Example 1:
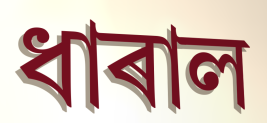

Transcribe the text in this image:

ধাৰাল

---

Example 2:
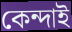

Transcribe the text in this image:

কেন্দাই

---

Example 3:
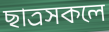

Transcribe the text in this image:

ছাত্ৰসকলে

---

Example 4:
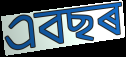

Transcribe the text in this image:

এবছৰ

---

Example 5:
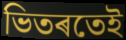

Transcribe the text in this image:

ভিতৰতেই